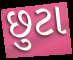
છુટા